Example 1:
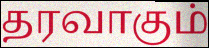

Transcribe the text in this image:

தரவாகும்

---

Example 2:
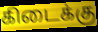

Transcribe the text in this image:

கிடைக்கு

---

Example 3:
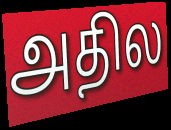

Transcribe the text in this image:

அதில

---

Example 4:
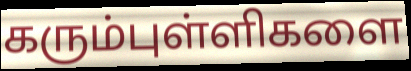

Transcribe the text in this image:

கரும்புள்ளிகளை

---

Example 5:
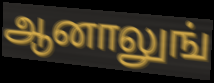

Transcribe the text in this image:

ஆனாலுங்